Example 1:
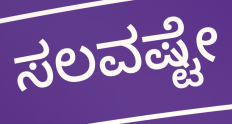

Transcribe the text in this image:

ಸಲವಷ್ಟೇ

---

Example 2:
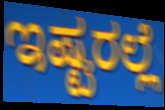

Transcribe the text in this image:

ಇಷ್ಟರಲ್ಲೆ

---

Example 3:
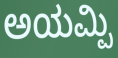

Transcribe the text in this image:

ಅಯಮ್ಪಿ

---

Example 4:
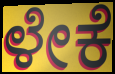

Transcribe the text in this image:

ಳೇಕೆ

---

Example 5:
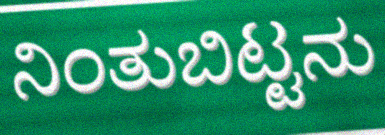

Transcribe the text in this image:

ನಿಂತುಬಿಟ್ಟನು